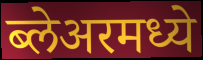
ब्लेअरमध्ये